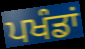
ਪਖੰਡਾਂ